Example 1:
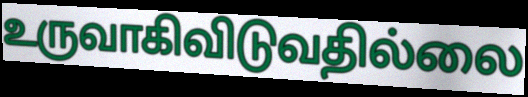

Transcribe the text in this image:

உருவாகிவிடுவதில்லை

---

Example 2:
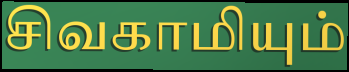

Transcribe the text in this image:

சிவகாமியும்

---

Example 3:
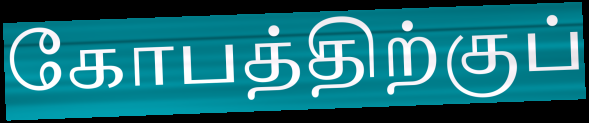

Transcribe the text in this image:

கோபத்திற்குப்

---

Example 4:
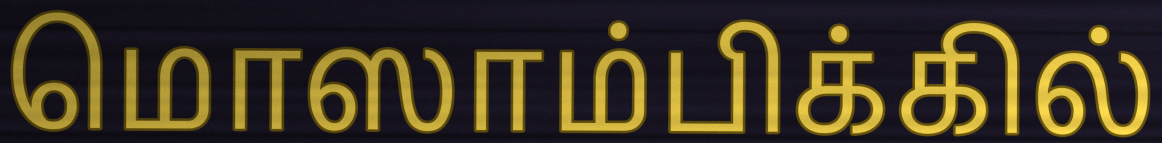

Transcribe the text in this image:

மொஸாம்பிக்கில்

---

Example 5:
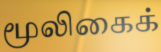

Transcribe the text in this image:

மூலிகைக்